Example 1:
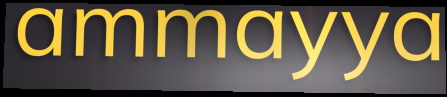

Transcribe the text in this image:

ammayya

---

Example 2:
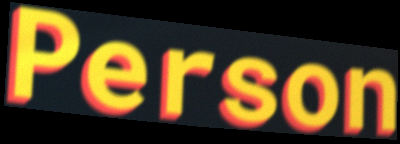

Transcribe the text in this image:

Person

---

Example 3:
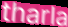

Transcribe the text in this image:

tharla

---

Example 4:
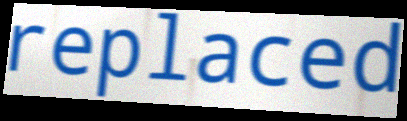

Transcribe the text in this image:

replaced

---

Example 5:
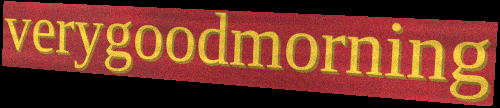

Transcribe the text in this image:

verygoodmorning